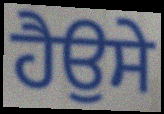
ਹੈਉਸੇ